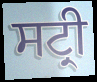
ਸਟ੍ਰੀ